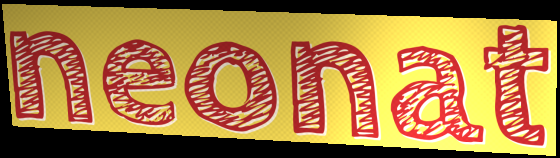
neonat